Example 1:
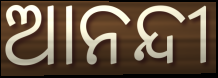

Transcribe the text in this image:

ଆନନ୍ଦୀ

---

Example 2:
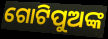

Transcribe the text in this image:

ଗୋଟିପୁଅଙ୍କ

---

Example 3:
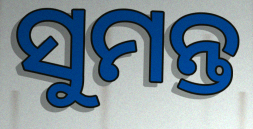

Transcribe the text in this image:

ସୁମନ୍ତ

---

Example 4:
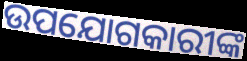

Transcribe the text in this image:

ଉପଯୋଗକାରୀଙ୍କ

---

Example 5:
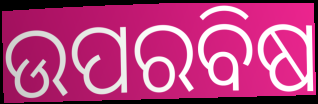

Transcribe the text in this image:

ଉପରବିଷ